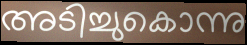
അടിച്ചുകൊന്നു